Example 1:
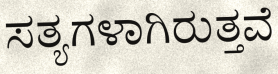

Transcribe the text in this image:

ಸತ್ಯಗಳಾಗಿರುತ್ತವೆ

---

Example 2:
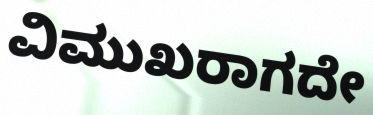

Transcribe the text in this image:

ವಿಮುಖರಾಗದೇ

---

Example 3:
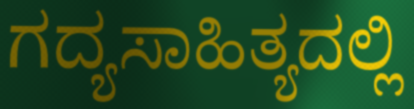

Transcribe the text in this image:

ಗದ್ಯಸಾಹಿತ್ಯದಲ್ಲಿ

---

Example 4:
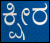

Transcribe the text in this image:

ಕ್ಷೀರ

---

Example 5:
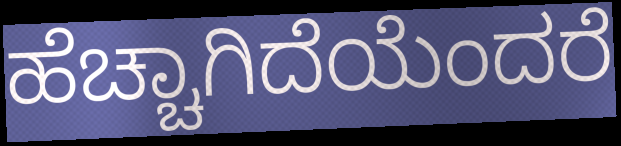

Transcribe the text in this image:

ಹೆಚ್ಚಾಗಿದೆಯೆಂದರೆ